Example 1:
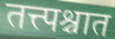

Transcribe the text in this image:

तत्त्पश्चात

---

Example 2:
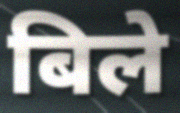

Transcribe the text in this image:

बिले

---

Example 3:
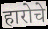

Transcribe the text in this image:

हारोचे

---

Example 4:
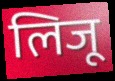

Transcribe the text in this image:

लिजू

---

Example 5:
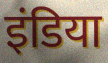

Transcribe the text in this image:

इंडिया